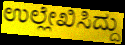
ಉಲ್ಲೇಖಿಸಿದ್ದು